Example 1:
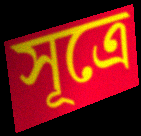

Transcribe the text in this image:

সূত্ৰে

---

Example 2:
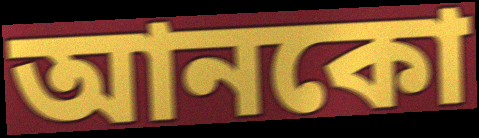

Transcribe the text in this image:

আনকো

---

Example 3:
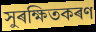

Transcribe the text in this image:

সুৰক্ষিতকৰণ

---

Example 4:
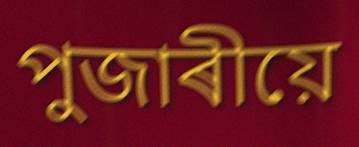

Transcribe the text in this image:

পুজাৰীয়ে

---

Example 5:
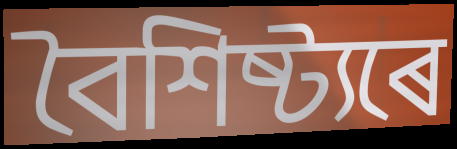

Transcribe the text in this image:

বৈশিষ্ট্যৰে